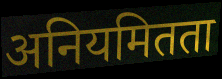
अनियमितता